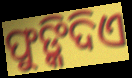
ଫୁଙ୍କିଦିଏ